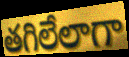
తగిలేలాగా